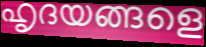
ഹൃദയങ്ങളെ